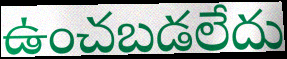
ఉంచబడలేదు